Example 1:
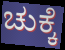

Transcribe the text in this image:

ಚುಕ್ಕೆ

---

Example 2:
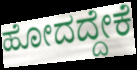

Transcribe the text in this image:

ಹೋದದ್ದೇಕೆ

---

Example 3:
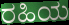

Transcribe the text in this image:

ರಹಿಯ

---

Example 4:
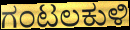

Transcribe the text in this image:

ಗಂಟಲಕುಳಿ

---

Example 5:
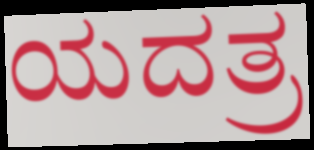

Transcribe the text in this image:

ಯದತ್ರ